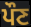
ਪੌਣ